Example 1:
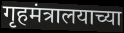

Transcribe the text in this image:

गृहमंत्रालयाच्या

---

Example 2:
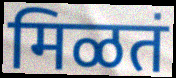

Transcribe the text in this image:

मिळतं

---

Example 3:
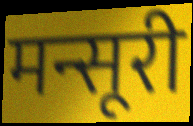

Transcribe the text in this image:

मन्सूरी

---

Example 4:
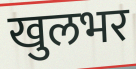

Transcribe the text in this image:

खुलभर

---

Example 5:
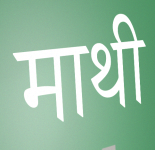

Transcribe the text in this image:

माथी